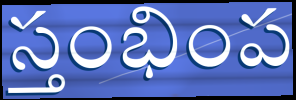
స్తంభింప